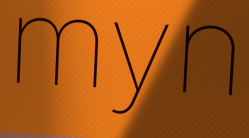
myn